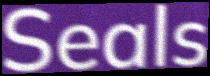
Seals